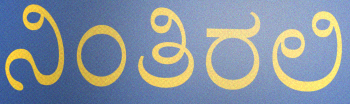
ನಿಂತಿರಲಿ